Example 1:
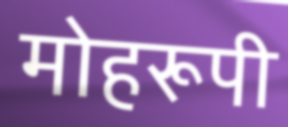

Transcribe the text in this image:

मोहरूपी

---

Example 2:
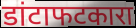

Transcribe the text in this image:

डांटाफटकारा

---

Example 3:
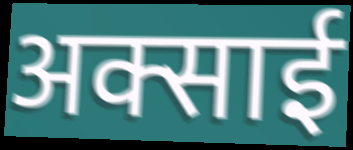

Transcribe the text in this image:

अक्साई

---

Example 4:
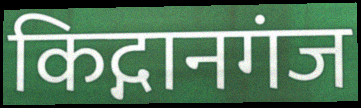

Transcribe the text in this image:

किद्गानगंज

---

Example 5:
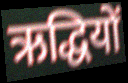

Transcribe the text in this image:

ऋद्धियों